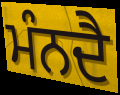
ਮੰਨਦੈ